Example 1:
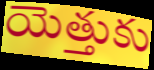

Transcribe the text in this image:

యెత్తుకు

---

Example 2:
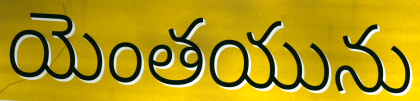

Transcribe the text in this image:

యెంతయును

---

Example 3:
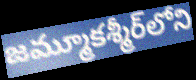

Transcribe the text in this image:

జమ్మూకశ్మీర్‌లోని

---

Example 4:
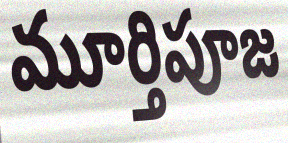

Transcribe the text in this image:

మూర్తిపూజ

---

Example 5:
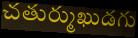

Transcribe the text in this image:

చతుర్ముఖుడగు